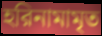
হরিনামামৃত